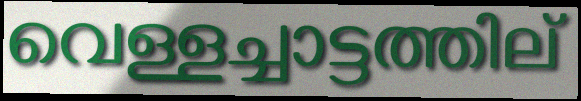
വെള്ളച്ചാട്ടത്തില്